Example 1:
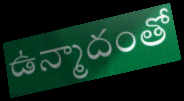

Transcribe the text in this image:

ఉన్మాదంతో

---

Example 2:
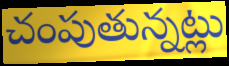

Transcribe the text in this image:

చంపుతున్నట్లు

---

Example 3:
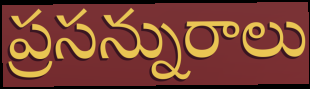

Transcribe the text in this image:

ప్రసన్నురాలు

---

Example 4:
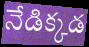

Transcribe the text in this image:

నేడిక్కడ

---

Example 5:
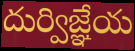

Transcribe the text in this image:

దుర్విజ్ఞేయ